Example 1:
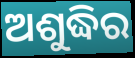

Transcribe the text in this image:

ଅଶୁଦ୍ଧିର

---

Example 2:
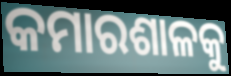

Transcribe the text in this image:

କମାରଶାଳକୁ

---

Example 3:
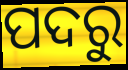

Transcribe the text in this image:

ପଦରୁ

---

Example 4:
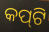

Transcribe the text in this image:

କପ୍‌ଟି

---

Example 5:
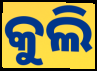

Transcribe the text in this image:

କୁଲି